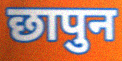
छापुन